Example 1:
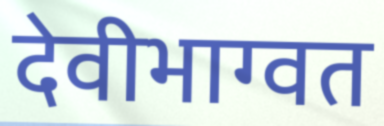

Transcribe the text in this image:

देवीभाग्वत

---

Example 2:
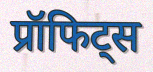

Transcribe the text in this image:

प्रॉफिट्स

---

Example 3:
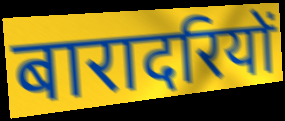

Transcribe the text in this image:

बारादरियों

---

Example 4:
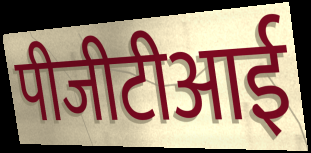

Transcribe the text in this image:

पीजीटीआई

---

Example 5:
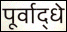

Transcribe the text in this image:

पूर्वाद्धे